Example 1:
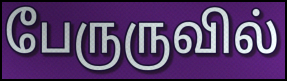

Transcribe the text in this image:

பேருருவில்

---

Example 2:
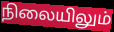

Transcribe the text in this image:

நிலையிலும்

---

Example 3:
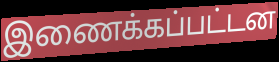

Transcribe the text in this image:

இணைக்கப்பட்டன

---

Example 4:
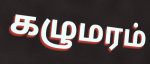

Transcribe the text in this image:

கழுமரம்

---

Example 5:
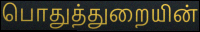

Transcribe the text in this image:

பொதுத்துறையின்